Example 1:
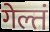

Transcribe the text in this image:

गेल्तं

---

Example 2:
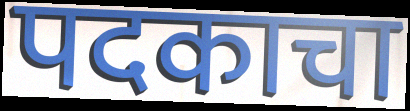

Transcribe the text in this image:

पदकाचा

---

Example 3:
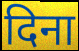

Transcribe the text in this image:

दिना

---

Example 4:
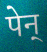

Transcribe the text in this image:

पेन्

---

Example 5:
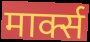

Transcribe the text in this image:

मार्क्स